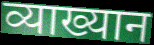
व्याख्यान